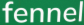
fennel